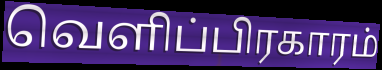
வெளிப்பிரகாரம்